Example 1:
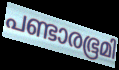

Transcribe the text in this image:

പണ്ടാരഭൂമി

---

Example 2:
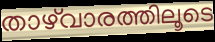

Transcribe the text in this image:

താഴ്‌വാരത്തിലൂടെ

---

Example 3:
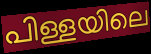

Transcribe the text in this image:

പിള്ളയിലെ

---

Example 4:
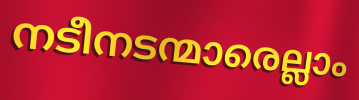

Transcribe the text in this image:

നടീനടന്മാരെല്ലാം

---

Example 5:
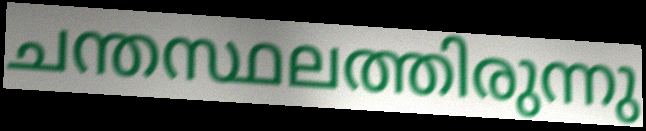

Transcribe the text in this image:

ചന്തസ്ഥലത്തിരുന്നു